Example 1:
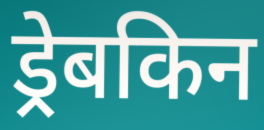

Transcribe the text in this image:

ड्रेबकिन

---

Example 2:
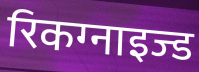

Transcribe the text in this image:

रिकग्नाइज्ड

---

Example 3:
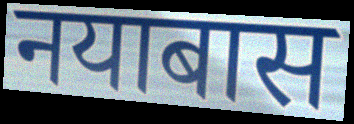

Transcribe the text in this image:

नयाबास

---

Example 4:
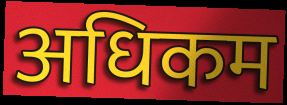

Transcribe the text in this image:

अधिकम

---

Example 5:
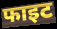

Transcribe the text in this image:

फाइट